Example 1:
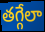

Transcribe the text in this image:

తగ్గేలా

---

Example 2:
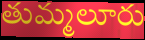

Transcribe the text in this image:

తుమ్మలూరు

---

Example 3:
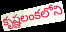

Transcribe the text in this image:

కృష్ణలంకలోని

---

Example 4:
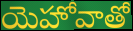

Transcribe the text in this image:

యెహోవాతో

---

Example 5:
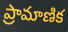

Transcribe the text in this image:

ప్రామాణిక